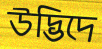
উদ্ভিদে